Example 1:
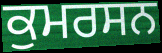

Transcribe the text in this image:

ਕੁਮਰਸਨ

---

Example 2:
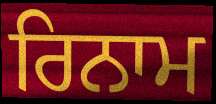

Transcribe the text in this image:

ਰਿਨਾਮ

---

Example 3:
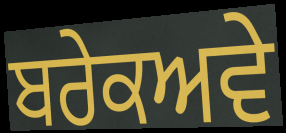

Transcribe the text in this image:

ਬਰੇਕਅਵੇ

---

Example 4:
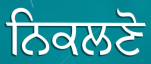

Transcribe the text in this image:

ਨਿਕਲਣੋ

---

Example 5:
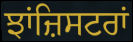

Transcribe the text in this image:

ਝਾਂਜ਼ਿਸਟਰਾਂ